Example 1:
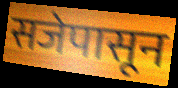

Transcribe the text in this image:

सजेपासून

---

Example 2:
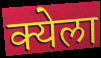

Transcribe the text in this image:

क्येला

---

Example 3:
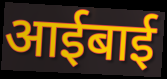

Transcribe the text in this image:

आईबाई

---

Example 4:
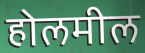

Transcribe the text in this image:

होलमील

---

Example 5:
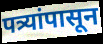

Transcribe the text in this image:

पत्र्यांपासून